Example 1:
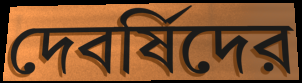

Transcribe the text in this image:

দেবর্ষিদের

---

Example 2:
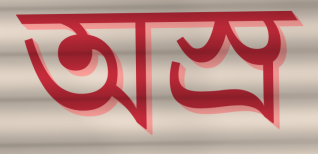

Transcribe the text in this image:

অস্র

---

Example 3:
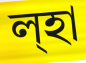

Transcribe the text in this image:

ল্হা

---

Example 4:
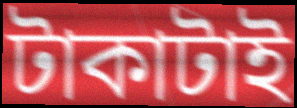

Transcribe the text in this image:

টাকাটাই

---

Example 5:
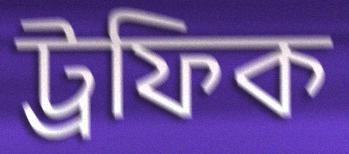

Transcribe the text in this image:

ট্রফিক